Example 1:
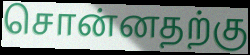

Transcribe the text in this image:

சொன்னதற்கு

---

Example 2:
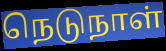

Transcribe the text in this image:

நெடுநாள்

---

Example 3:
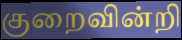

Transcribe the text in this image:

குறைவின்றி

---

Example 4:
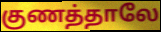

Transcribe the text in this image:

குணத்தாலே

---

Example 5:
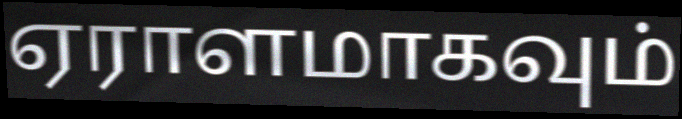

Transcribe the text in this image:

ஏராளமாகவும்